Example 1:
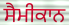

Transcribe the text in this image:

ਸੈਮੀਕਾਨ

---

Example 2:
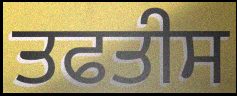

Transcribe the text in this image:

ਤਫਤੀਸ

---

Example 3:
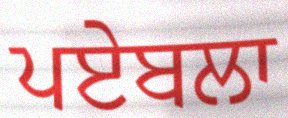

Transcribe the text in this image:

ਪਏਬਲਾ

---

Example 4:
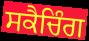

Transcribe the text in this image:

ਸਕੈਚਿੰਗ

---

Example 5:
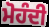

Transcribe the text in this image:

ਮੋਹੰਦੀ